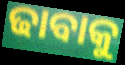
ଢାବାକୁ